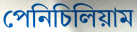
পেনিচিলিয়াম